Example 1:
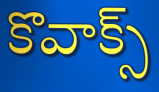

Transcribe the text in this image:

కొవాక్స్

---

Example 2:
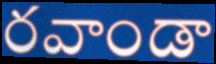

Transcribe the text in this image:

రవాండా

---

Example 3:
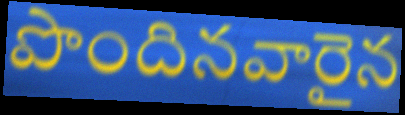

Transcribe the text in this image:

పొందినవారైన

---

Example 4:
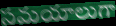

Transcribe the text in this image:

సమయాలుగా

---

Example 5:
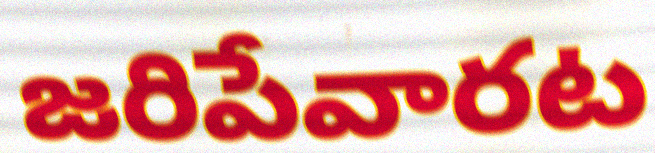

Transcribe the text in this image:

జరిపేవారట